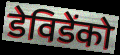
डेविडेंको